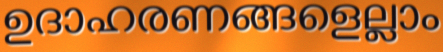
ഉദാഹരണങ്ങളെല്ലാം